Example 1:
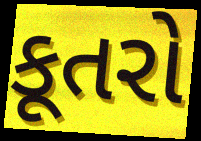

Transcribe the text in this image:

કૂતરો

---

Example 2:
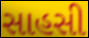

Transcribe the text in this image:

સાહસી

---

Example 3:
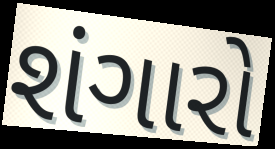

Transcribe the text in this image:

શંગારો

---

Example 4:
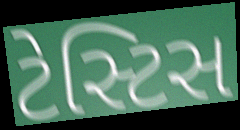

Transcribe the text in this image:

ટેસ્ટિસ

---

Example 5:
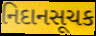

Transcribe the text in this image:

નિદાનસૂચક